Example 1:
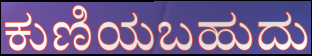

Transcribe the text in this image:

ಕುಣಿಯಬಹುದು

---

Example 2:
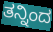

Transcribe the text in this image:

ತನ್ನಿಂದ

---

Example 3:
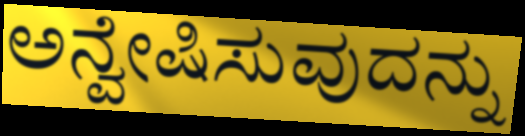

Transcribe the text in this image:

ಅನ್ವೇಷಿಸುವುದನ್ನು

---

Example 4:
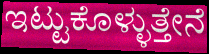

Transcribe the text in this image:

ಇಟ್ಟುಕೊಳ್ಳುತ್ತೇನೆ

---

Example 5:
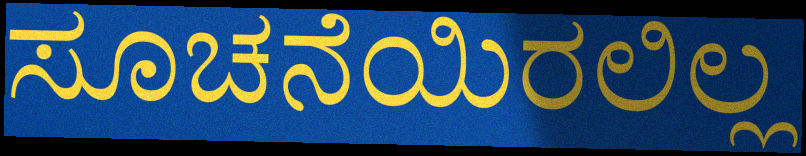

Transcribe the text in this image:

ಸೂಚನೆಯಿರಲಿಲ್ಲ